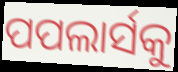
ପପଲାର୍ସକୁ